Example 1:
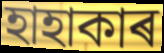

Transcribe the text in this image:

হাহাকাৰ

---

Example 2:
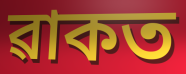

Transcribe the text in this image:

ৱাকত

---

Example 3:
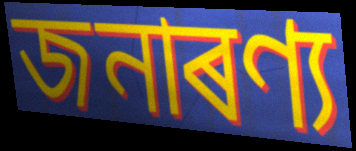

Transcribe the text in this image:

জনাৰণ্য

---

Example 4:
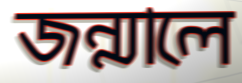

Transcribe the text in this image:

জন্মালে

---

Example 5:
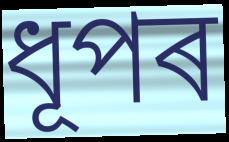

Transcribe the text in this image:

ধূপৰ